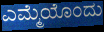
ಎಮ್ಮೆಯೊಂದು